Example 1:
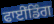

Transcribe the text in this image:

ਫਾਈਂਡਿੰਗ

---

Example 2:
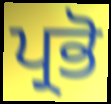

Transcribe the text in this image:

ਪ੍ਰਭੋ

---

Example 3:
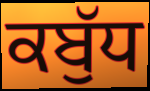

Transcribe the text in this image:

ਕਬੁੱਧ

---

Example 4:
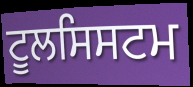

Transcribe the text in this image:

ਟੂਲਸਿਸਟਮ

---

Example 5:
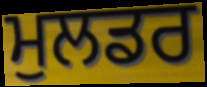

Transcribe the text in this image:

ਮੁਲਡਰ